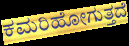
ಕಮರಿಹೋಗುತ್ತದೆ